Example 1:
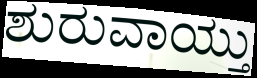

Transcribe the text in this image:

ಶುರುವಾಯ್ತು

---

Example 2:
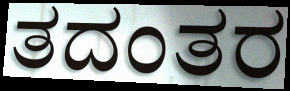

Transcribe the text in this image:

ತದಂತರ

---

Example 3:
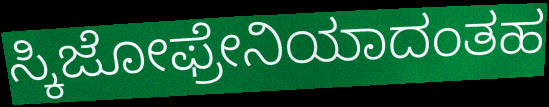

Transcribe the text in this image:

ಸ್ಕಿಜೋಫ್ರೇನಿಯಾದಂತಹ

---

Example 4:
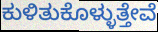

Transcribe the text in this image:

ಕುಳಿತುಕೊಳ್ಳುತ್ತೇವೆ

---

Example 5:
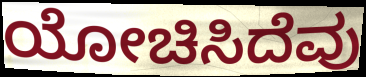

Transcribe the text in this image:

ಯೋಚಿಸಿದೆವು